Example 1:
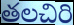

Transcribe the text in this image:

తలచిరి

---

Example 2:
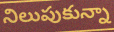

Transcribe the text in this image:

నిలుపుకున్నా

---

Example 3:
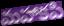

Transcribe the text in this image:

మహాకపి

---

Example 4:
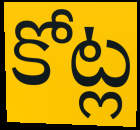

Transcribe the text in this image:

కోట్ల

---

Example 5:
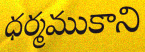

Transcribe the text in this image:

ధర్మముకాని